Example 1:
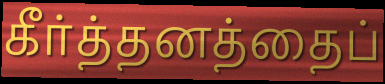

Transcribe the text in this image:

கீர்த்தனத்தைப்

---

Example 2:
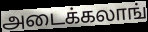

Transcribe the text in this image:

அடைக்கலாங்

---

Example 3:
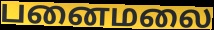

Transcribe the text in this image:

பனைமலை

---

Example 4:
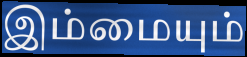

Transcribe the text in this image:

இம்மையும்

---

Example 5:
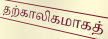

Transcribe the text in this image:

தற்காலிகமாகத்